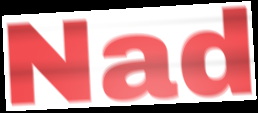
Nad